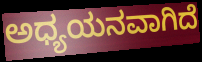
ಅಧ್ಯಯನವಾಗಿದೆ